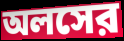
অলসের